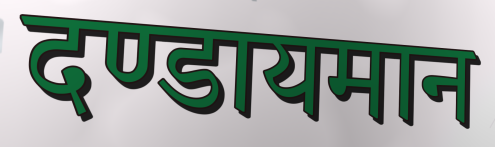
दण्डायमान